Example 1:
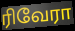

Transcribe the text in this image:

ரிவேரா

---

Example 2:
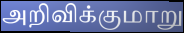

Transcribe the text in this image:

அறிவிக்குமாறு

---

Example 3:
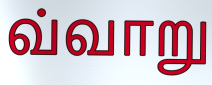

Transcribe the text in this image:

வ்வாறு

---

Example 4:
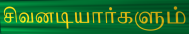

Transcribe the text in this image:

சிவனடியார்களும்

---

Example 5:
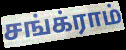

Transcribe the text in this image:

சங்க்ராம்